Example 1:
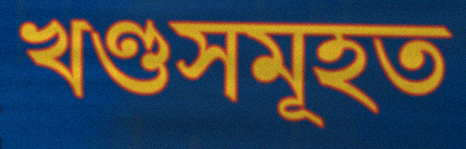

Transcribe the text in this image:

খণ্ডসমূহত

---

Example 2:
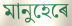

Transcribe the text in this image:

মানুহেৰে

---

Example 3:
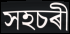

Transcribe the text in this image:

সহচৰী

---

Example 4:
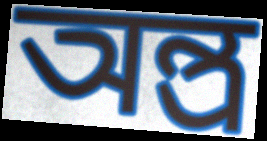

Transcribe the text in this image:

অন্ত্ৰ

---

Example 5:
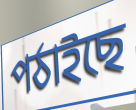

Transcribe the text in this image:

পঠাইছে